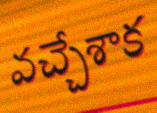
వచ్చేశాక